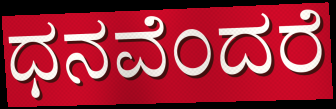
ಧನವೆಂದರೆ